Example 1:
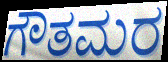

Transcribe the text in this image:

ಗೌತಮರ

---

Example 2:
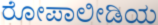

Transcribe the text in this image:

ರೋಪಾಲೀಡಿಯ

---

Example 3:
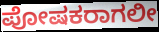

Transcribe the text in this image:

ಪೋಷಕರಾಗಲೀ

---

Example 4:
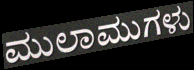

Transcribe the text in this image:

ಮುಲಾಮುಗಳು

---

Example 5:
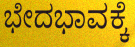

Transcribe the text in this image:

ಭೇದಭಾವಕ್ಕೆ